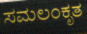
ಸಮಲಂಕೃತ